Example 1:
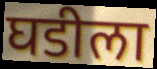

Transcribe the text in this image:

घडीला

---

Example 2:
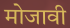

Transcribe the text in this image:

मोजावी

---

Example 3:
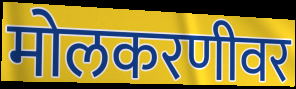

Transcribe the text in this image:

मोलकरणीवर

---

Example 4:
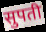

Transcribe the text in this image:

सुपती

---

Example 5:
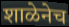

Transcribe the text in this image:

शाळेनेच